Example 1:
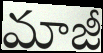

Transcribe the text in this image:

మాజీ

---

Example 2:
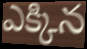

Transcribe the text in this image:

ఎక్కిన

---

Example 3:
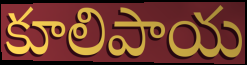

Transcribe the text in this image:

కూలిపాయ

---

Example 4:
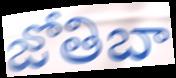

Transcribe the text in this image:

జోతిబా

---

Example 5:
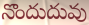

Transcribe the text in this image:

నొందుదువు